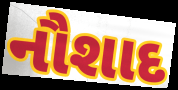
નૌશાદ